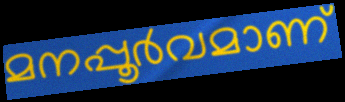
മനപ്പൂർവമാണ്